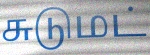
சுடுமட்